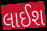
લાઈશ